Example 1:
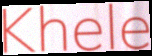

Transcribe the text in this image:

Khele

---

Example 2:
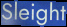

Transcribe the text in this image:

Sleight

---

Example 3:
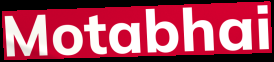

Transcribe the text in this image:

Motabhai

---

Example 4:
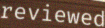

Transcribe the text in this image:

reviewed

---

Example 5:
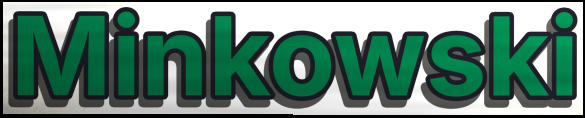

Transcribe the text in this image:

Minkowski